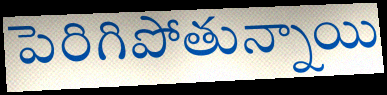
పెరిగిపోతున్నాయి